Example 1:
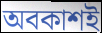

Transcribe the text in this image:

অবকাশই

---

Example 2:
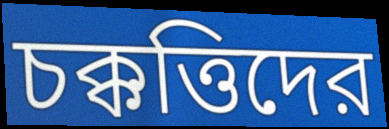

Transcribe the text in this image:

চক্কত্তিদের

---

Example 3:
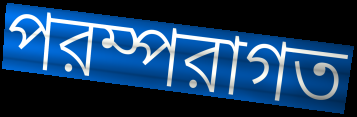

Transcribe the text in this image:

পরম্পরাগত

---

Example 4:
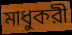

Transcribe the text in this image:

মাধুকরী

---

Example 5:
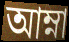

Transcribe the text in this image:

আম্না